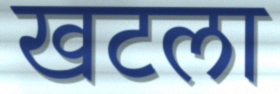
खटला